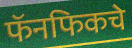
फॅनफिकचे